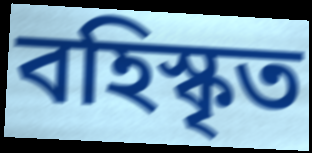
বহিস্কৃত